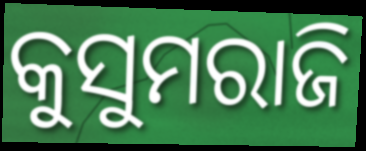
କୁସୁମରାଜି